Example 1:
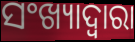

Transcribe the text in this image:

ସଂଖ୍ୟାଦ୍ୱାରା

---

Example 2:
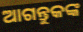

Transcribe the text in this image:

ଆଗନ୍ତୁକଙ୍କ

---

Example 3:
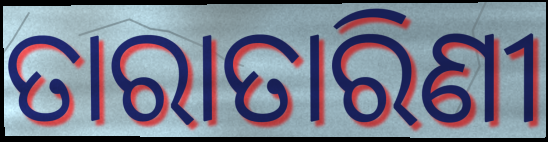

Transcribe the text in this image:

ତାରାତାରିଣୀ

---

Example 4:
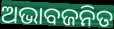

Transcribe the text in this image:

ଅଭାବଜନିତ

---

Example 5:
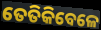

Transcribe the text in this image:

ତେତିକିବେଳେ